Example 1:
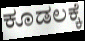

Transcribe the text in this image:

ಕೂಡಲಕ್ಕೆ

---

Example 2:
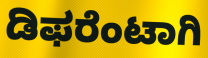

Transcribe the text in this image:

ಡಿಫರೆಂಟಾಗಿ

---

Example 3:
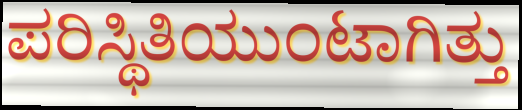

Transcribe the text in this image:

ಪರಿಸ್ಥಿತಿಯುಂಟಾಗಿತ್ತು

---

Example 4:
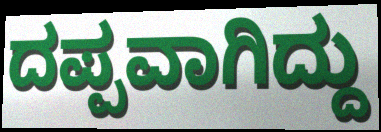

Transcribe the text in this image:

ದಪ್ಪವಾಗಿದ್ದು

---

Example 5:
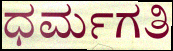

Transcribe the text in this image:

ಧರ್ಮಗತಿ